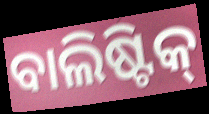
ବାଲିଷ୍ଟିକ୍